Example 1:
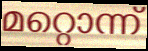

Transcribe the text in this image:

മറ്റൊന്ന്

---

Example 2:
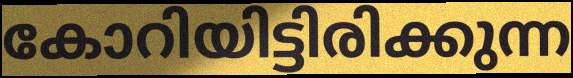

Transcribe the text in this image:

കോറിയിട്ടിരിക്കുന്ന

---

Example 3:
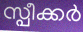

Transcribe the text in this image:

സ്പീക്കർ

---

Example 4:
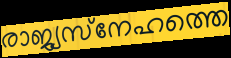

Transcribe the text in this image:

രാജ്യസ്‌നേഹത്തെ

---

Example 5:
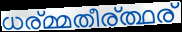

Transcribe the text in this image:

ധര്മ്മതീര്ത്ഥര്